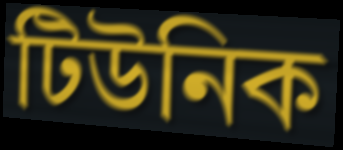
টিউনিক